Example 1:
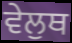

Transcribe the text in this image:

ਵੇਲੁਥ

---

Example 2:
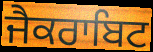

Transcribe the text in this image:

ਜੈਕਰਾਬਿਟ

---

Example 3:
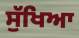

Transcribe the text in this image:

ਸੁੱਖਿਆ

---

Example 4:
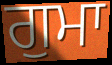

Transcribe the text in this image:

ਗੁਮਾ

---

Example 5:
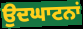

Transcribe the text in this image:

ਉਦਘਾਟਨਾਂ